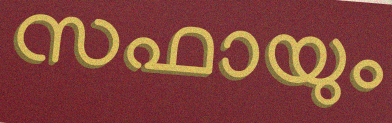
സഫായും